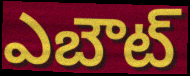
ఎబౌట్